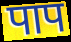
पाप